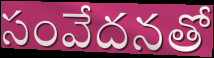
సంవేదనతో